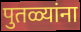
पुतळ्यांना